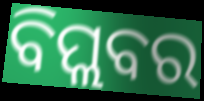
ବିପ୍ଲବର